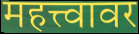
महत्त्वावर